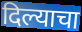
दिल्याचा